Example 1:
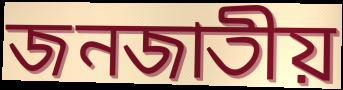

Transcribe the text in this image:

জনজাতীয়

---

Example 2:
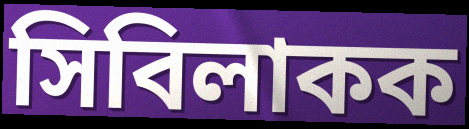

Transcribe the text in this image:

সিবিলাকক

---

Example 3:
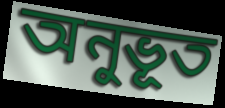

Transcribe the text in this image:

অনুভূত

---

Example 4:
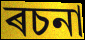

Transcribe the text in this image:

ৰচনা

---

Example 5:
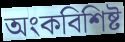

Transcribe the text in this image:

অংকবিশিষ্ট